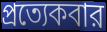
প্রত্যেকবার